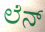
ಲೆನ್